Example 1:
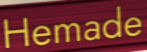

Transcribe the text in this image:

Hemade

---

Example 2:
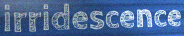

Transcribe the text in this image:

irridescence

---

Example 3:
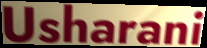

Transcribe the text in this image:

Usharani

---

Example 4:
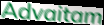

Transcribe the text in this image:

Advaitam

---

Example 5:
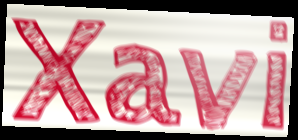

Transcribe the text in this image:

Xavi